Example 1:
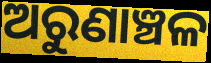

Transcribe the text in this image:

ଅରୁଣାଞ୍ଚଳ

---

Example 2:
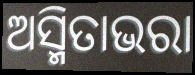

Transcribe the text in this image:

ଅସ୍ମିତାଭରା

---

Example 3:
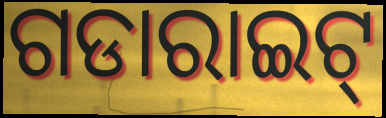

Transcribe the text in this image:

ଗଡାରାଇଟ୍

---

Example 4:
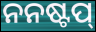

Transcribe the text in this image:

ନନଷ୍ଟପ୍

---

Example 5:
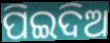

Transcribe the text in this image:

ପିଇଦିଅ